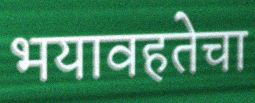
भयावहतेचा